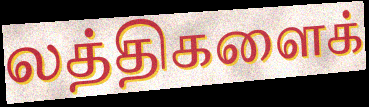
லத்திகளைக்